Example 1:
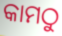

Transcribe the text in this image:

କାମଠୁ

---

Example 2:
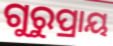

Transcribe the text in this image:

ଗୁରୁପ୍ରାୟ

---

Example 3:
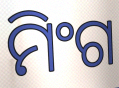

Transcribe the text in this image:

ମିଂଗ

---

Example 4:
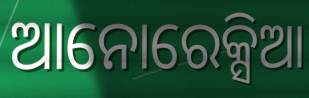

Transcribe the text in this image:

ଆନୋରେକ୍ସିଆ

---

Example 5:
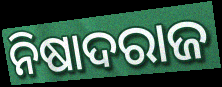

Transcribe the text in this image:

ନିଷାଦରାଜ